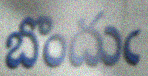
బొందుఁ